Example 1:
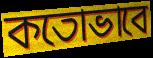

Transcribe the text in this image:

কতোভাবে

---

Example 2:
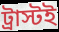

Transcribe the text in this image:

ট্রাস্টই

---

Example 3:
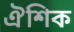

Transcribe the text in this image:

ঐশিক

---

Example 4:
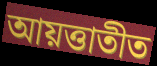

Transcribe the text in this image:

আয়ত্তাতীত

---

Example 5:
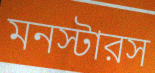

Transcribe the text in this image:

মনস্টারস